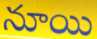
నూయి